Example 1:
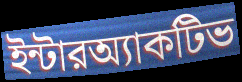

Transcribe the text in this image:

ইন্টারঅ্যাকটিভ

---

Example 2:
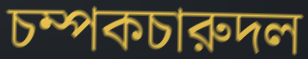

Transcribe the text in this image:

চম্পকচারুদল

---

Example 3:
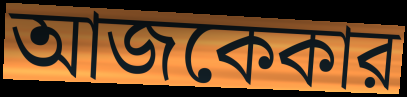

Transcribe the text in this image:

আজকেকার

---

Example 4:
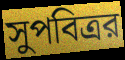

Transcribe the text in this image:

সুপবিত্রর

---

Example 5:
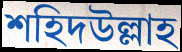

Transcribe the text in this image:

শহিদউল্লাহ